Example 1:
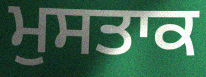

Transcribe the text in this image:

ਮੁਸਤਾਕ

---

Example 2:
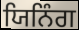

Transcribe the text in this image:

ਯਿਨਿੰਗ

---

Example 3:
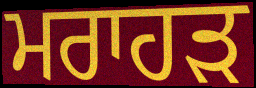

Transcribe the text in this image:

ਮਰਾਹੜ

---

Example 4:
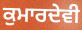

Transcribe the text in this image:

ਕੁਮਾਰਦੇਵੀ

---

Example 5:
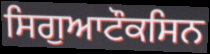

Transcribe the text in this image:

ਸਿਗੁਆਟੌਕਸਿਨ